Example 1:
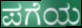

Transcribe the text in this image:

ಪಗೆಯ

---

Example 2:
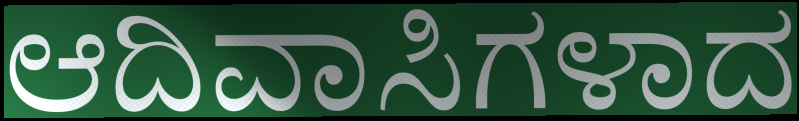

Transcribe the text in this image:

ಆದಿವಾಸಿಗಳಾದ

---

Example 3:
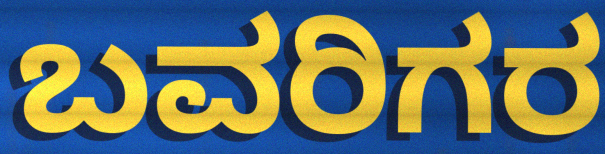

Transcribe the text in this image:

ಬವರಿಗರ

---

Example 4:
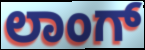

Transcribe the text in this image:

ಲಾಂಗ್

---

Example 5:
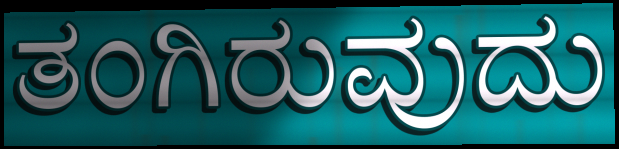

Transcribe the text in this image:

ತಂಗಿರುವುದು